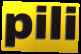
pili